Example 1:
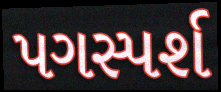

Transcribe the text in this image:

પગસ્પર્શ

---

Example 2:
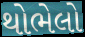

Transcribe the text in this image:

થોભેલો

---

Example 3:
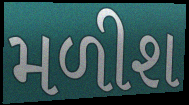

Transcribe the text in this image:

મળીશ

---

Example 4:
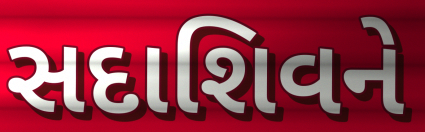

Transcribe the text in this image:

સદાશિવને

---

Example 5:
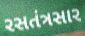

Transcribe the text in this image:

રસતંત્રસાર